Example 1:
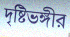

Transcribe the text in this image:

দৃষ্টিভঙ্গীর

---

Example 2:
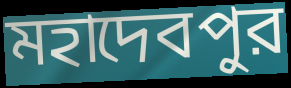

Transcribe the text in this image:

মহাদেবপুর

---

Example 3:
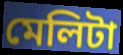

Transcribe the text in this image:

মেলিটা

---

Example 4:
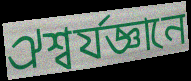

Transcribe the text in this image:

ঐশ্বর্যজ্ঞানে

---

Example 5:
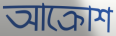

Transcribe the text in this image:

আক্রোশ